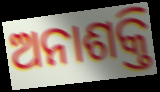
ଅନାଶକ୍ତି